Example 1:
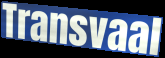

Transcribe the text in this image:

Transvaal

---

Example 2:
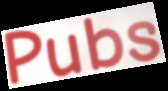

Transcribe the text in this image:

Pubs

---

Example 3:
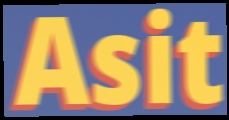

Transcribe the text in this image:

Asit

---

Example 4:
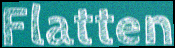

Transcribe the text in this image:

Flatten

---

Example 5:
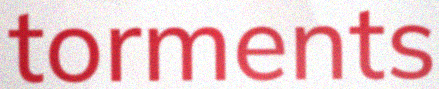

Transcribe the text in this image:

torments